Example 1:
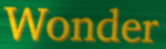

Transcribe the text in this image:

Wonder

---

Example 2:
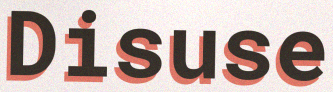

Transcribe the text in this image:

Disuse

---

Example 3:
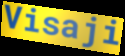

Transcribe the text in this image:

Visaji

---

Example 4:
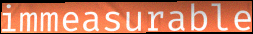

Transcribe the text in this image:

immeasurable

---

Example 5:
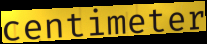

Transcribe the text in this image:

centimeter